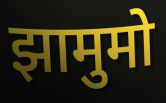
झामुमो